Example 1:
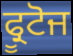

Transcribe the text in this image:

ਫ੍ਰੂਟੋਜ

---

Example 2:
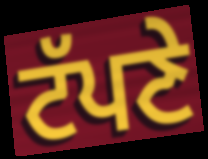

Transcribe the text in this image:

ਟੱਪਣੇ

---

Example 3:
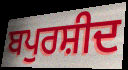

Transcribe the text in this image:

ਬਪੁਰਸ਼ੀਦ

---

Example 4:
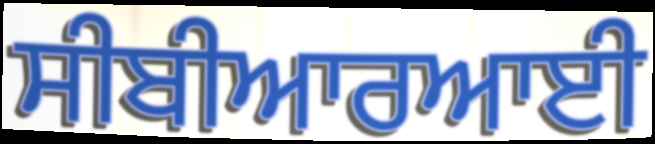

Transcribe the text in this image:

ਸੀਬੀਆਰਆਈ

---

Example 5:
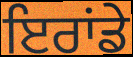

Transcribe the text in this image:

ਇਰਾਂਡੇ